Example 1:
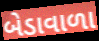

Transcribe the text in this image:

બેડાવાળા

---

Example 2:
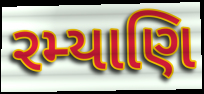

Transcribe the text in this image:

રમ્યાણિ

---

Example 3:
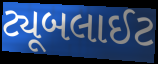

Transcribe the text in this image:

ટ્યૂબલાઈટ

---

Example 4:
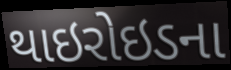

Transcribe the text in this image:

થાઇરોઇડના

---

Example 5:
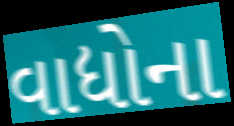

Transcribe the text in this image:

વાદ્યોના